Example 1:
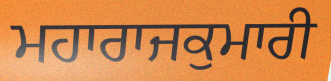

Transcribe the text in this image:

ਮਹਾਰਾਜਕੁਮਾਰੀ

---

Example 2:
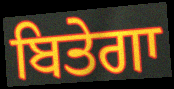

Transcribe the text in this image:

ਬਿਤੇਗਾ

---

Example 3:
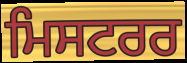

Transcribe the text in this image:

ਮਿਸਟਰਰ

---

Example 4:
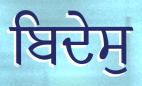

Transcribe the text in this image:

ਬਿਦੇਸੁ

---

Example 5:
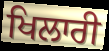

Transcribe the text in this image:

ਖਿਲਾਰੀ